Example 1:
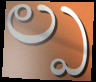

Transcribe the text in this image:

ల్ప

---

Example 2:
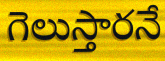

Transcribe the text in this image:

గెలుస్తారనే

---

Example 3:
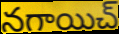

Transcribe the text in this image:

నగాయిచ్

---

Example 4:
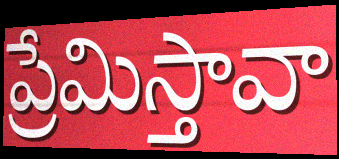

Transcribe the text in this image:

ప్రేమిస్తావా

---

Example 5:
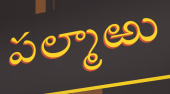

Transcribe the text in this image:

పల్మాఱు